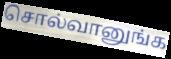
சொல்வானுங்க